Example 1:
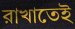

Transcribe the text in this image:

রাখাতেই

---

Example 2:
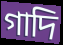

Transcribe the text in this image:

গাদি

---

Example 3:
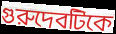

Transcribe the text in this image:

গুরুদেবটিকে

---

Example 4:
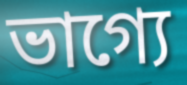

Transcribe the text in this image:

ভাগ্যে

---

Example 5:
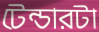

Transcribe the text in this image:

টেন্ডারটা